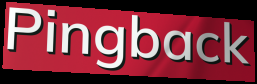
Pingback